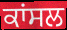
ਕਾਂਸਲ